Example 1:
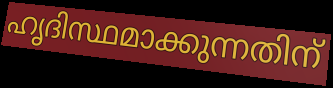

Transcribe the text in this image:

ഹൃദിസ്ഥമാക്കുന്നതിന്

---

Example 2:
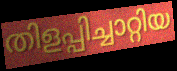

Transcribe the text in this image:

തിളപ്പിച്ചാറ്റിയ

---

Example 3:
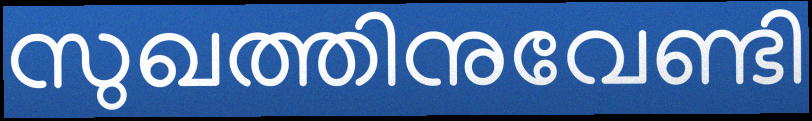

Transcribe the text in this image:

സുഖത്തിനുവേണ്ടി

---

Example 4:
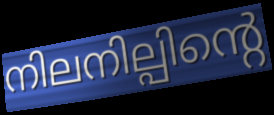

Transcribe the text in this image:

നിലനില്പിന്റെ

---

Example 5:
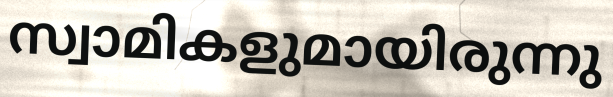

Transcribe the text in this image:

സ്വാമികളുമായിരുന്നു